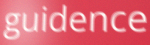
guidence